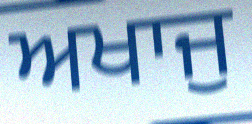
ਅਖਾਜੁ